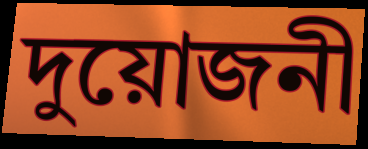
দুয়োজনী